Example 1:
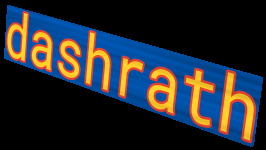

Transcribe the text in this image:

dashrath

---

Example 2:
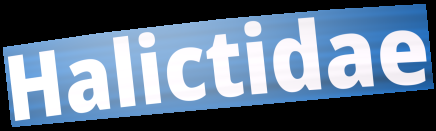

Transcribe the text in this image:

Halictidae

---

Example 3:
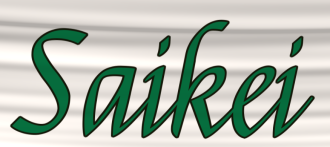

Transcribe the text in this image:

Saikei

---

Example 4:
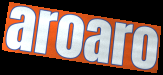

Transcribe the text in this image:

aroaro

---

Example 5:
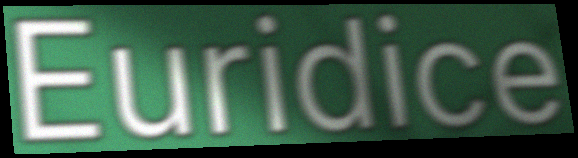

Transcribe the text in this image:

Euridice